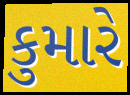
કુમારે